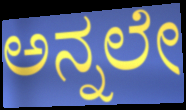
ಅನ್ನಲೇ